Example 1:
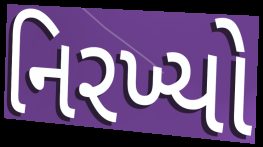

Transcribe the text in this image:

નિરખ્યો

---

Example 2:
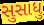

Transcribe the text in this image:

સુસાધુ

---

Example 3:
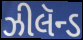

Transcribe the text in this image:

ઝીલૅન્ડ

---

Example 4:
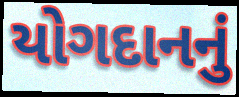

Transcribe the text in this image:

યોગદાનનું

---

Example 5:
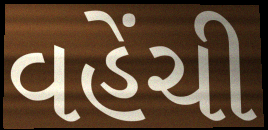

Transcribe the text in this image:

વહેંચી